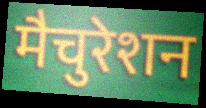
मैचुरेशन